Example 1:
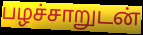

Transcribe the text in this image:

பழச்சாறுடன்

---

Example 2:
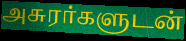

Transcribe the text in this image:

அசுரர்களுடன்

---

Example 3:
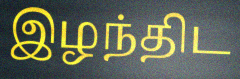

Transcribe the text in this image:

இழந்திட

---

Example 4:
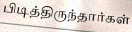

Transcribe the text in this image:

பிடித்திருந்தார்கள்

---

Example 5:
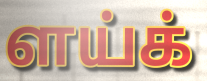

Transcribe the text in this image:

ளய்க்